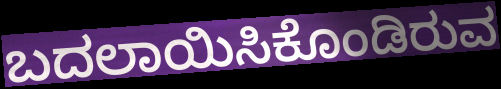
ಬದಲಾಯಿಸಿಕೊಂಡಿರುವ